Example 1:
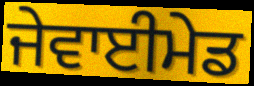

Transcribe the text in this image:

ਜੇਵਾਈਮੇਡ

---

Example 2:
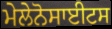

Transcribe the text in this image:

ਮੇਲੇਨੋਸਾਈਟਸ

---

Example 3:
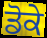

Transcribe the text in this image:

ਡੋਕੇ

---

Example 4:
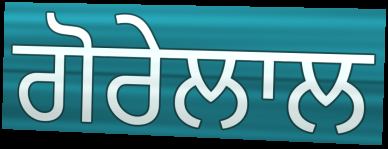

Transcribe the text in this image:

ਗੋਰੇਲਾਲ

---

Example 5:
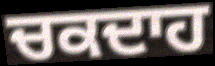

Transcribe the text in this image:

ਚਕਦਾਹ